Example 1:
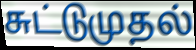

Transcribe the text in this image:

சுட்டுமுதல்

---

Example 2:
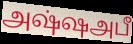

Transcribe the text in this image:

அஷ்ஷஅபீ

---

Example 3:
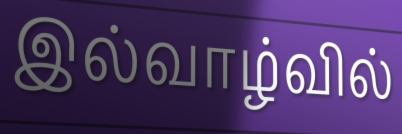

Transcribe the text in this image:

இல்வாழ்வில்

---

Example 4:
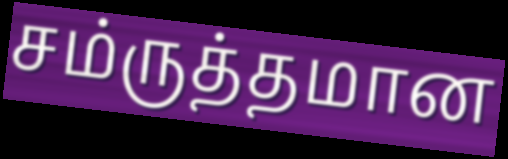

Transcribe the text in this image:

சம்ருத்தமான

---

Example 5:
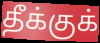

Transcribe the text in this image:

தீக்குக்